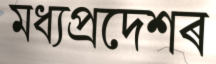
মধ্যপ্ৰদেশৰ